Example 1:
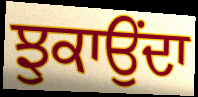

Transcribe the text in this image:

ਝੁਕਾਉਂਦਾ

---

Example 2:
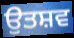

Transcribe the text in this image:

ਉਤਸ਼ਵ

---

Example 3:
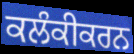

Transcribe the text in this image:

ਕਲੰਕੀਕਰਨ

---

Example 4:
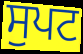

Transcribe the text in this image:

ਸੁਪਟ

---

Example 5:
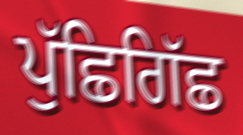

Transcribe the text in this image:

ਪੁੱਛਿਗਿੱਛ